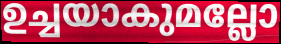
ഉച്ചയാകുമല്ലോ